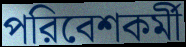
পরিবেশকর্মী